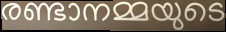
രണ്ടാനമ്മയുടെ